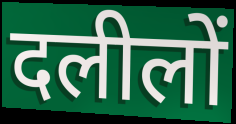
दलीलों